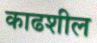
काढशील